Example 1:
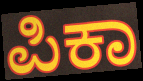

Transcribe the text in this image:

ಪಿಕಾ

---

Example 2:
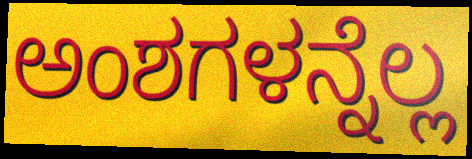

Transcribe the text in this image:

ಅಂಶಗಳನ್ನೆಲ್ಲ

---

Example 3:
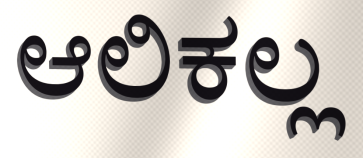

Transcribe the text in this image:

ಆಲಿಕಲ್ಲ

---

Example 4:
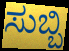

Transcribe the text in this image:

ಸುಬ್ಬಿ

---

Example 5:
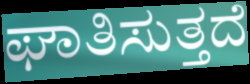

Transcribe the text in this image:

ಘಾತಿಸುತ್ತದೆ